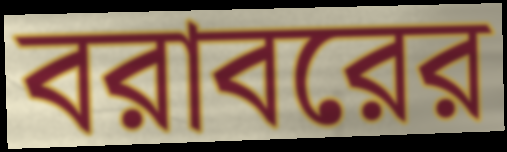
বরাবরের